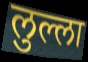
लुल्ला